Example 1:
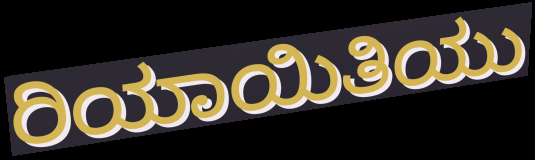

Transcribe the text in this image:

ರಿಯಾಯಿತಿಯು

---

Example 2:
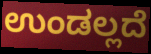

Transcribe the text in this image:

ಉಂಡಲ್ಲದೆ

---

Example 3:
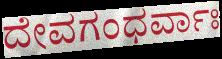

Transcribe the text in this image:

ದೇವಗಂಧರ್ವಾಃ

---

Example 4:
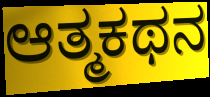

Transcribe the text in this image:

ಆತ್ಮಕಥನ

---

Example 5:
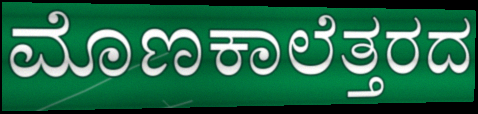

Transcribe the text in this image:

ಮೊಣಕಾಲೆತ್ತರದ